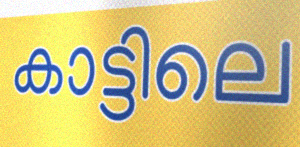
കാട്ടിലെ